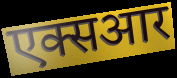
एक्सआर